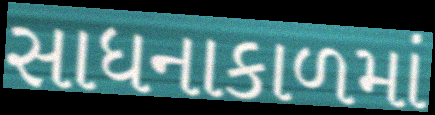
સાધનાકાળમાં